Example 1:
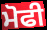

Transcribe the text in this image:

ਮੋਫੀ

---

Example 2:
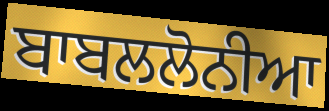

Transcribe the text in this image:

ਬਾਬਲਲੋਨੀਆ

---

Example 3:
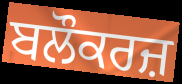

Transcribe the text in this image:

ਬਲੌਕਰਜ਼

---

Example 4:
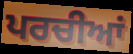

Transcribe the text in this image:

ਪਰਚੀਆਂ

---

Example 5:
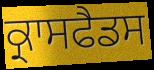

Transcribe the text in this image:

ਕ੍ਰਾਸਫੈਡਸ